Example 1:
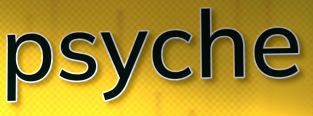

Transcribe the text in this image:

psyche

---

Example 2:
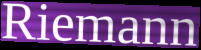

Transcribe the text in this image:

Riemann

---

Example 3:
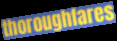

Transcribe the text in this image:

thoroughfares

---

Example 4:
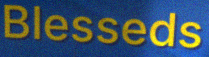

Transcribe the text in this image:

Blesseds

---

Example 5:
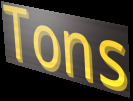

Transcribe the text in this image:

Tons